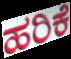
ಹರಿಕೆ